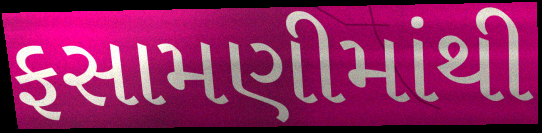
ફસામણીમાંથી